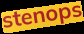
stenops